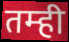
तम्ही